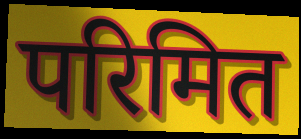
परिमित